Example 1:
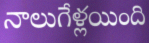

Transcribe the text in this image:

నాలుగేళ్లయింది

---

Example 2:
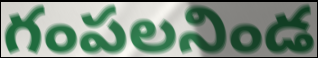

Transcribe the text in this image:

గంపలనిండ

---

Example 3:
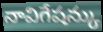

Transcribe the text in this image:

నావిగేషన్కు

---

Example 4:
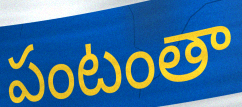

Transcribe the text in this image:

పంటంతా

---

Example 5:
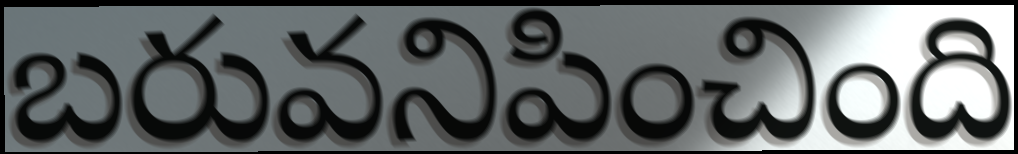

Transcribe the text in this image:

బరువనిపించింది